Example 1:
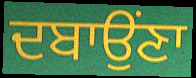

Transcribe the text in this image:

ਦਬਾਉਂਣਾ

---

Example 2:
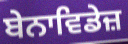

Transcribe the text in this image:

ਬੇਨਾਵਿਡੇਜ਼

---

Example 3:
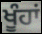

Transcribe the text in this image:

ਖੂੰਹਾਂ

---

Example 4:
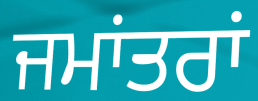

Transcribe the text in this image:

ਜਮਾਂਤਰਾਂ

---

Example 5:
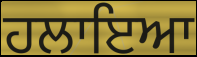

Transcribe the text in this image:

ਹਲਾਇਆ